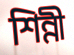
শিন্নী